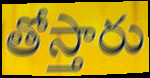
తోస్తారు